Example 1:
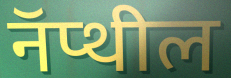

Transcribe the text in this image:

नॅप्थील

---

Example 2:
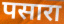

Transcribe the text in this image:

पसारा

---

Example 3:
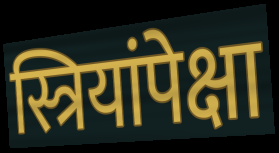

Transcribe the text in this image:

स्त्रियांपेक्षा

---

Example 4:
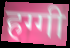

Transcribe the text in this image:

हग्गी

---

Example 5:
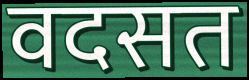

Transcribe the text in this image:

वदसत